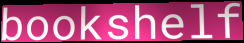
bookshelf